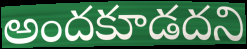
అందకూడదని